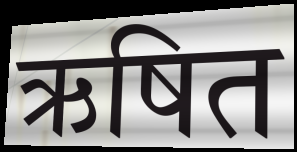
ऋषित